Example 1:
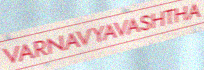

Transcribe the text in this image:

VARNAVYAVASHTHA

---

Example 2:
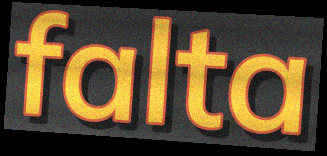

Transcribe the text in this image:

falta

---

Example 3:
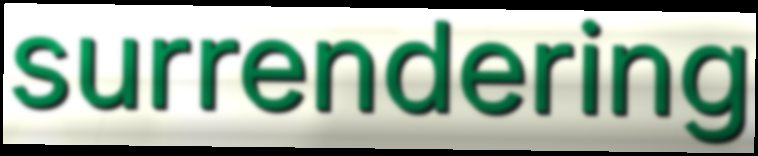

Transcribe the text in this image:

surrendering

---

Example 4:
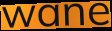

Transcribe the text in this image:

wane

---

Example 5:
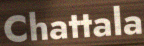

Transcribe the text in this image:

Chattala